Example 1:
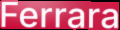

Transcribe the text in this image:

Ferrara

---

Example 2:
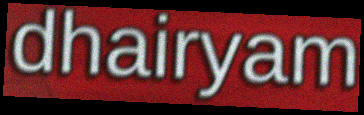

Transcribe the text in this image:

dhairyam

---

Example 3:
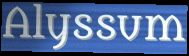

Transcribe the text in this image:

Alyssum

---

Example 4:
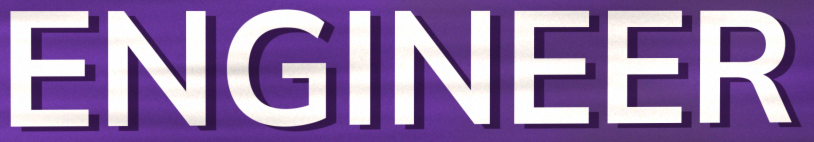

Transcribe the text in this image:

ENGINEER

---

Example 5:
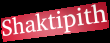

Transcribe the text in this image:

Shaktipith